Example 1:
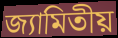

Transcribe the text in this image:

জ্যামিতীয়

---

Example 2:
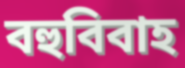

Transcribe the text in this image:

বহুবিবাহ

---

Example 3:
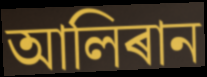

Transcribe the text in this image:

আলিৰান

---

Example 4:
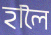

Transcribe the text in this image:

হালৈ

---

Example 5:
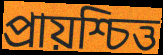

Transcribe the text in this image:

প্ৰায়শ্চিত্ত